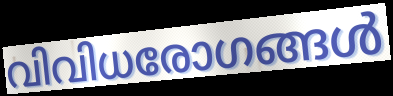
വിവിധരോഗങ്ങൾ